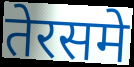
तेरसमे